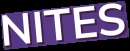
NITES